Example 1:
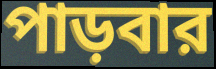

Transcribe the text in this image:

পাড়বার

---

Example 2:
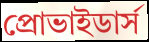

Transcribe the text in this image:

প্রোভাইডার্স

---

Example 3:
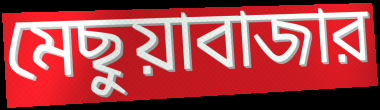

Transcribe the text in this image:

মেছুয়াবাজার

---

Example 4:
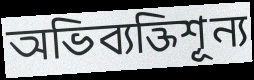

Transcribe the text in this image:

অভিব্যক্তিশূন্য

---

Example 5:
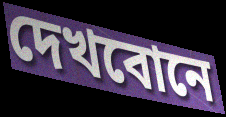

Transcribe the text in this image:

দেখবোনে